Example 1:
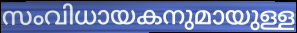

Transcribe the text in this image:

സംവിധായകനുമായുള്ള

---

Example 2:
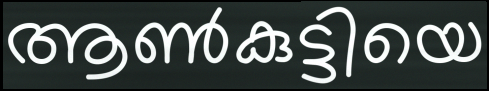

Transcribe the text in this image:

ആൺകുട്ടിയെ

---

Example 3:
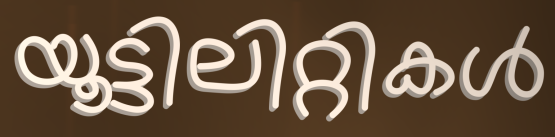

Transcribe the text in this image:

യൂട്ടിലിറ്റികൾ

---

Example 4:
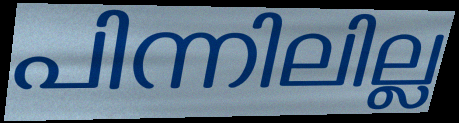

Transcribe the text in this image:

പിന്നിലില്ല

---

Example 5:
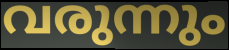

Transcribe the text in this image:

വരുന്നും